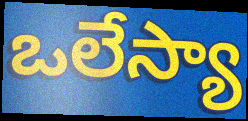
ఒలేస్యా